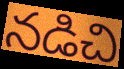
నడిచి